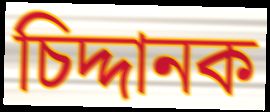
চিদ্দানক